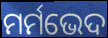
ମର୍ମଭେଦ